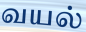
வயல்